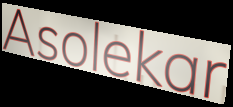
Asolekar